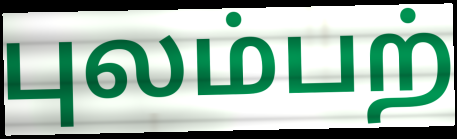
புலம்பற்